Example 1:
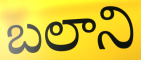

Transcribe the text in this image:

బలాని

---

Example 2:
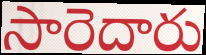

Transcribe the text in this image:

సారెదారు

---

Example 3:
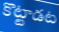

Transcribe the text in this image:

కొట్టాడట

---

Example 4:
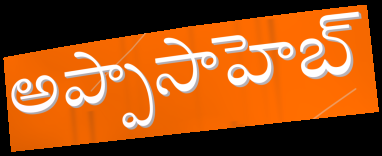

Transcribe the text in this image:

అప్పాసాహెబ్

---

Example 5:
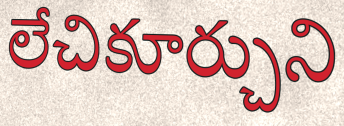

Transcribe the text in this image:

లేచికూర్చుని